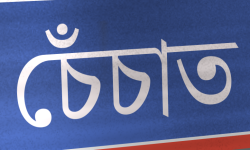
চেঁচাত